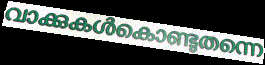
വാക്കുകൾകൊണ്ടുതന്നെ